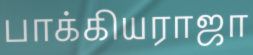
பாக்கியராஜா